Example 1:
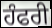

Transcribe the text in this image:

ਹੰਫਰੀ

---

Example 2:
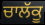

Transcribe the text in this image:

ਚਾਲੱਕੂ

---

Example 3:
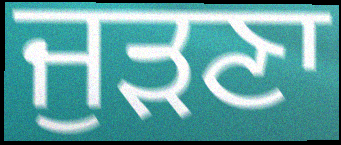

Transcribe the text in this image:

ਜੁੜਣਾ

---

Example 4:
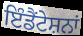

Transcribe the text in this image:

ਇੰਡੈਂਟੇਸ਼ਨਾਂ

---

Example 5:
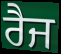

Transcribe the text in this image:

ਰੈਜ